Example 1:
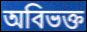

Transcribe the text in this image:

অবিভক্ত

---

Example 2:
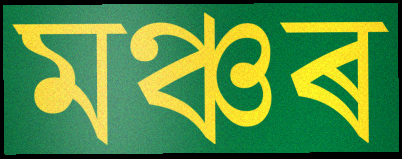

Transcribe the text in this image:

মঞ্চৰ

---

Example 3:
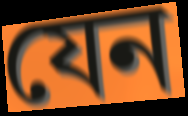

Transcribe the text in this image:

যেন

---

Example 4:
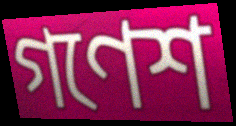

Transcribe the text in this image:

গণেশ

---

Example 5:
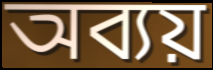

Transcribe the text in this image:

অব্যয়